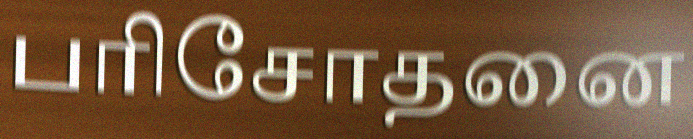
பரிசோதனை